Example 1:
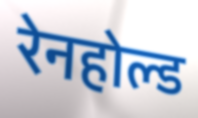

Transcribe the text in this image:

रेनहोल्ड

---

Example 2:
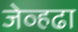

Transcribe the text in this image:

जेव्हढा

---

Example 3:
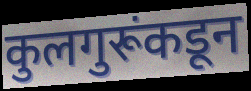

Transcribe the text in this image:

कुलगुरूंकडून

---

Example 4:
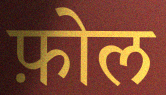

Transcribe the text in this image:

फ़ोल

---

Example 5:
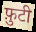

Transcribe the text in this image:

फ़ुटी